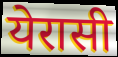
येरासी